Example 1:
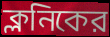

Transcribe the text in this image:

ক্লনিকের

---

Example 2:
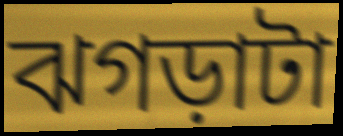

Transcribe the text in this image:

ঝগড়াটা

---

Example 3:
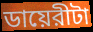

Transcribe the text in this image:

ডায়েরীটা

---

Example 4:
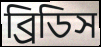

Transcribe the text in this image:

ব্রিডিস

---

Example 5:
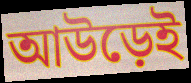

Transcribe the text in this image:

আউড়েই